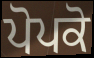
ਪੋਪਕੋ